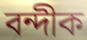
বন্দীক